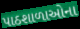
પાઠશાળાઓના